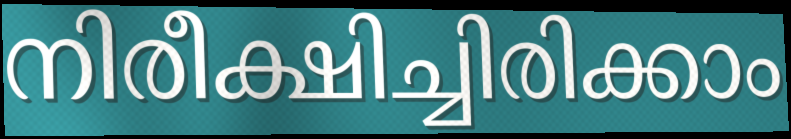
നിരീക്ഷിച്ചിരിക്കാം